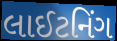
લાઈટનિંગ